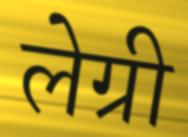
लेग्री